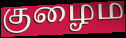
குழைம